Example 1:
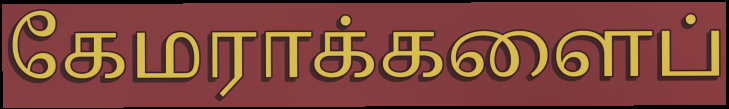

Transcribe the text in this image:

கேமராக்களைப்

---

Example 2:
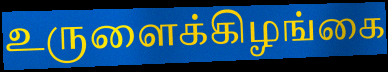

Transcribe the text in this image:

உருளைக்கிழங்கை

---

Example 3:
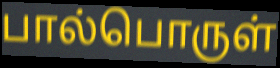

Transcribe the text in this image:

பால்பொருள்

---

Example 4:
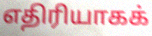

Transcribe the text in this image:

எதிரியாகக்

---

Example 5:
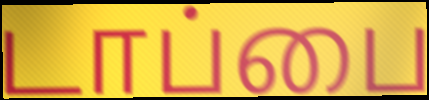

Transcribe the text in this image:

டாப்பை